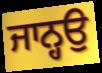
ਜਾਨ੍ਹਉ